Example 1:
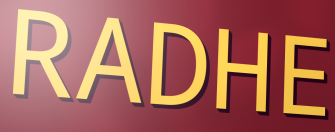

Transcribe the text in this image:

RADHE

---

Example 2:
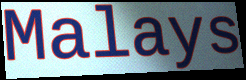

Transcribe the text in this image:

Malays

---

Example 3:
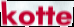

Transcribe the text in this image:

kotte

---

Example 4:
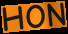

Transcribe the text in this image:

HON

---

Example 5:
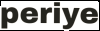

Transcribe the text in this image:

periye